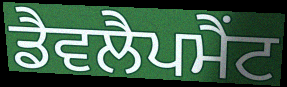
ਡੈਵਲੈਪਮੈਂਟ